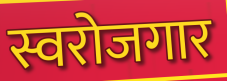
स्वरोजगार